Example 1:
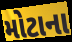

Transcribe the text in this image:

મોટાના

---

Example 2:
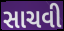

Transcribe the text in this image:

સાચવી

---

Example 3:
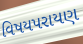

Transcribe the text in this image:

વિષયપરાયણ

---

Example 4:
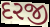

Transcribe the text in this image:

દરજી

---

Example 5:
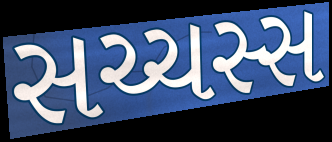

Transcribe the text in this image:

સચ્ચસ્સ